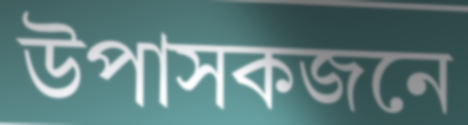
উপাসকজনে